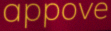
appove